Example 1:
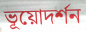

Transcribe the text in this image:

ভূয়োদর্শন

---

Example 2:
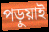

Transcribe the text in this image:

পড়ুয়াই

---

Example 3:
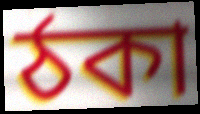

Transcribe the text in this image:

ঠকা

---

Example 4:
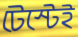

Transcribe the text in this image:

টেস্টেই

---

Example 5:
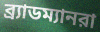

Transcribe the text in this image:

ব্র্যাডম্যানরা